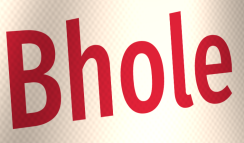
Bhole